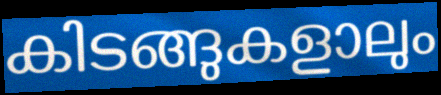
കിടങ്ങുകളാലും